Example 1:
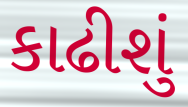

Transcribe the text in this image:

કાઢીશું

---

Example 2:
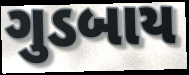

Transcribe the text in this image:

ગુડબાય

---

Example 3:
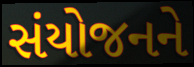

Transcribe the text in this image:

સંયોજનને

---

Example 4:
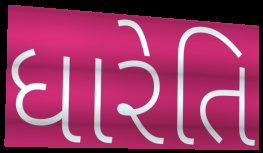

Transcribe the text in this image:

ધારેતિ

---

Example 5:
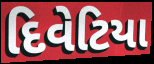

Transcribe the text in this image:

દિવેટિયા